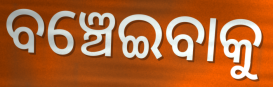
ବଞ୍ଚେଇବାକୁ